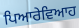
ਪਿਆਰੇਵਿਆਹ